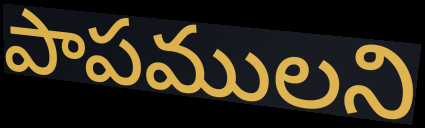
పాపములని